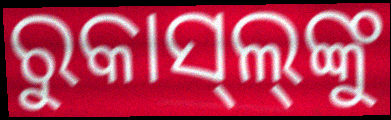
ରୁକାସ୍‍ଲ୍‌ଙ୍କୁ